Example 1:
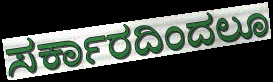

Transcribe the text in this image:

ಸರ್ಕಾರದಿಂದಲೂ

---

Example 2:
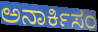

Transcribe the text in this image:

ಅನಾರ್ಕಿಸಂ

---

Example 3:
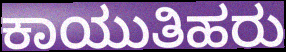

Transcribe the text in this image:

ಕಾಯುತಿಹರು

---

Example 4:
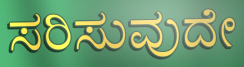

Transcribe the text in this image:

ಸರಿಸುವುದೇ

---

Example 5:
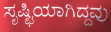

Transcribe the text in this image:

ಸೃಷ್ಟಿಯಾಗಿದ್ದವು